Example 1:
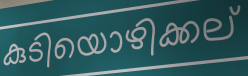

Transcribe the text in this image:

കുടിയൊഴിക്കല്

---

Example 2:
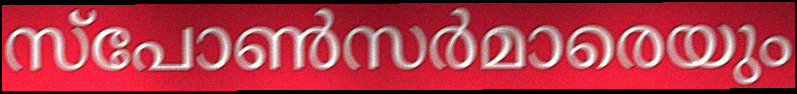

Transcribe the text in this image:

സ്പോൺസർമാരെയും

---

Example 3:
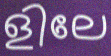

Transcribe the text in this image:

ളിലേ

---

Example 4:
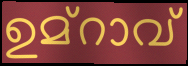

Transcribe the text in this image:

ഉമ്റാവ്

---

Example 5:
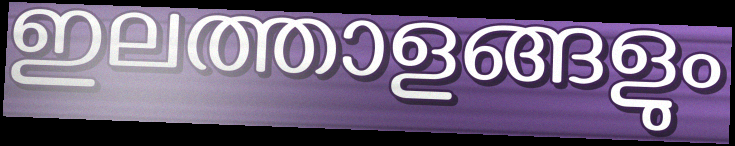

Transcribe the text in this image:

ഇലത്താളങ്ങളും